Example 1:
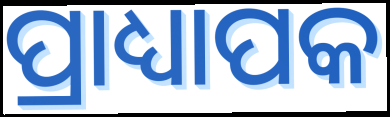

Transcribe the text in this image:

ପ୍ରାଧ୍ୟାପକ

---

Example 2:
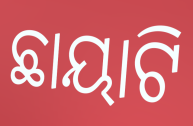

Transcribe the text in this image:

ଛାୟାଟି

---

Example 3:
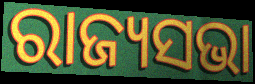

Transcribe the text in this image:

ରାଜ୍ୟସଭା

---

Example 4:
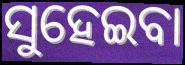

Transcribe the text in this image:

ସୁହେଇବା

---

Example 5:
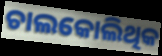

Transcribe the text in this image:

ଚାଲକୋଲିଥିକ